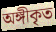
অঙ্গীকৃত